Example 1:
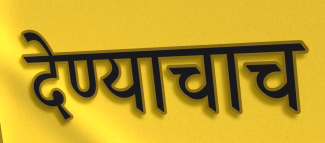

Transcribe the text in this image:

देण्याचाच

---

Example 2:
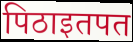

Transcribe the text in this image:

पिठाइतपत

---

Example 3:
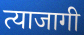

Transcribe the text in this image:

त्याजागी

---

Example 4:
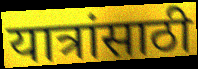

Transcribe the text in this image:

यात्रांसाठी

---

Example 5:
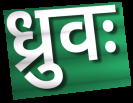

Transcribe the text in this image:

ध्रुवः